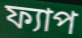
ফ্যাপ